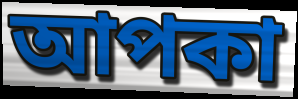
আপকা